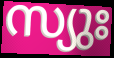
സ്യുഃ